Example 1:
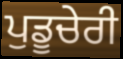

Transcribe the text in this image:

ਪੁਡੂਚੇਰੀ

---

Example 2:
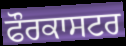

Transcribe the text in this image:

ਫੌਰਕਾਸਟਰ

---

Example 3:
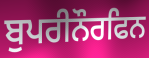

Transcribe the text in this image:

ਬੁਪਰੀਨੌਰਫਿਨ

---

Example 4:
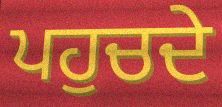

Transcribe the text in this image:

ਪਹੁਚਦੇ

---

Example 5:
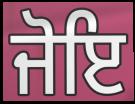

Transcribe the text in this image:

ਜੋਇ